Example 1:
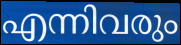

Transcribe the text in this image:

എന്നിവരും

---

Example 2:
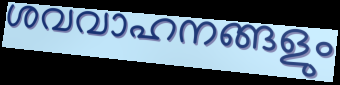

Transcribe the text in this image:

ശവവാഹനങ്ങളും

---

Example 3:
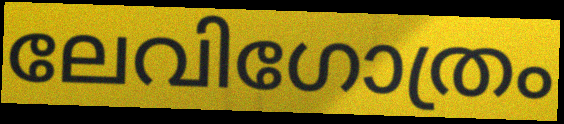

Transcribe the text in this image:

ലേവിഗോത്രം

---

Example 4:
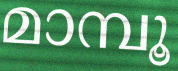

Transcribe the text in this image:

മാമ്പൂ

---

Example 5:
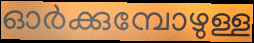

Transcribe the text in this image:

ഓർക്കുമ്പോഴുള്ള